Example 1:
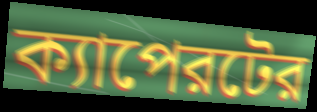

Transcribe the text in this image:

ক্যাপেরটের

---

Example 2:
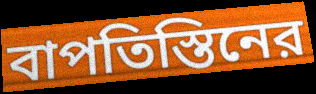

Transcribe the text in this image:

বাপতিস্তিনের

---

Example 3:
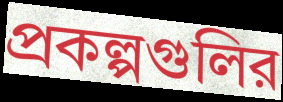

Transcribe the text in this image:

প্রকল্পগুলির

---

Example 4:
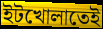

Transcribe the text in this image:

ইটখোলাতেই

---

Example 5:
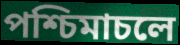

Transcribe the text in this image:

পশ্চিমাচলে